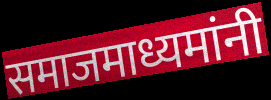
समाजमाध्यमांनी